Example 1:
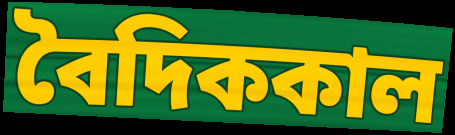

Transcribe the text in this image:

বৈদিককাল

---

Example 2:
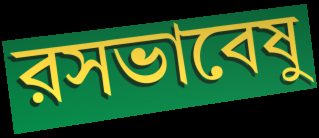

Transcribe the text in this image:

রসভাবেষু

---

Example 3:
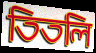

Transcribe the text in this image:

তিতলি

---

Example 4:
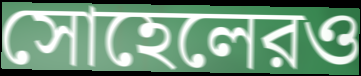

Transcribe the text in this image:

সোহেলেরও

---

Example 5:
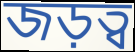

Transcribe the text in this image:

জড়ত্ব